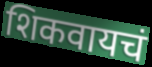
शिकवायचं